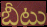
బీటు